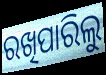
ରଖିପାରିଲୁ